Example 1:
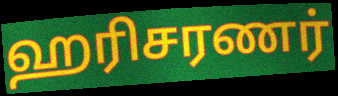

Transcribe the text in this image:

ஹரிசரணர்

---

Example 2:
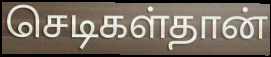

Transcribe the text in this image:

செடிகள்தான்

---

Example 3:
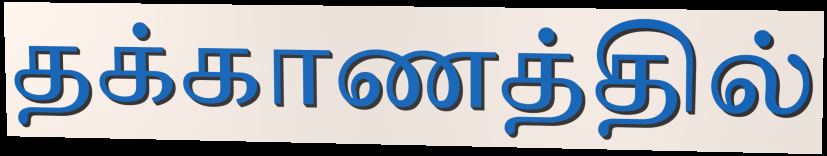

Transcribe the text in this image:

தக்காணத்தில்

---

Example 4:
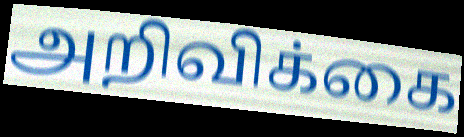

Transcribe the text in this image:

அறிவிக்கை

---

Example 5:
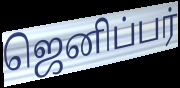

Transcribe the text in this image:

ஜெனிப்பர்